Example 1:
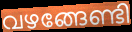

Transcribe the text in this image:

വഴങ്ങേണ്ടി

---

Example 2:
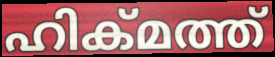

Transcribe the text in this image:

ഹിക്മത്ത്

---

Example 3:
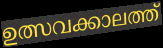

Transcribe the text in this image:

ഉത്സവക്കാലത്ത്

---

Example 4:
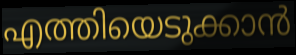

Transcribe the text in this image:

എത്തിയെടുക്കാൻ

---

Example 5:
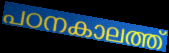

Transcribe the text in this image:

പഠനകാലത്ത്